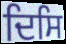
ਦਿਸਿ